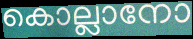
കൊല്ലാനോ